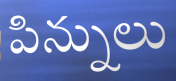
పిన్నులు